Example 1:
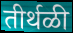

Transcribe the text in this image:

तीर्थळी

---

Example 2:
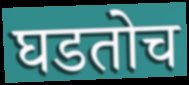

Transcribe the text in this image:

घडतोच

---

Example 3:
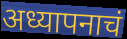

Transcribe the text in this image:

अध्यापनाचं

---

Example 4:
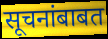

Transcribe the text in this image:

सूचनांबाबत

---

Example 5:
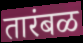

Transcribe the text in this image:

तारंबळ